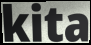
kita